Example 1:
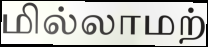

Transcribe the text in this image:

மில்லாமற்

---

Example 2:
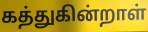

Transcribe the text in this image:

கத்துகின்றாள்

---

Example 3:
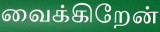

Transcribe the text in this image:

வைக்கிறேன்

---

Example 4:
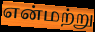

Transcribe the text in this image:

என்மற்று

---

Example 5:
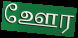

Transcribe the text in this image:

ஊேர